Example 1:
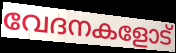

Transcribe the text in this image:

വേദനകളോട്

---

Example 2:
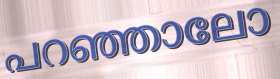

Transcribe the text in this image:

പറഞ്ഞാലോ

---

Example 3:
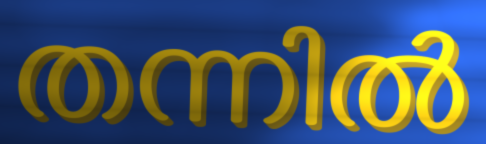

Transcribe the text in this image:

തന്നിൽ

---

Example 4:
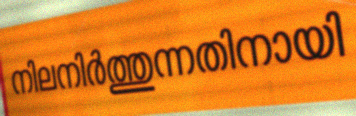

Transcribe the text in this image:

നിലനിർത്തുന്നതിനായി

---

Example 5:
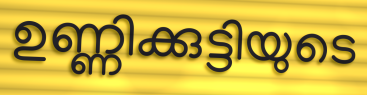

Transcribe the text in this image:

ഉണ്ണിക്കുട്ടിയുടെ